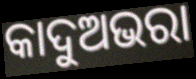
କାଦୁଅଭରା